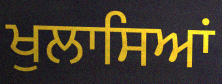
ਖੁਲਾਸਿਆਂ